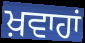
ਖ਼ਵਾਹਾਂ